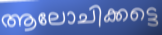
ആലോചിക്കട്ടെ